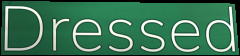
Dressed